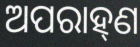
ଅପରାହ୍‍ଣ